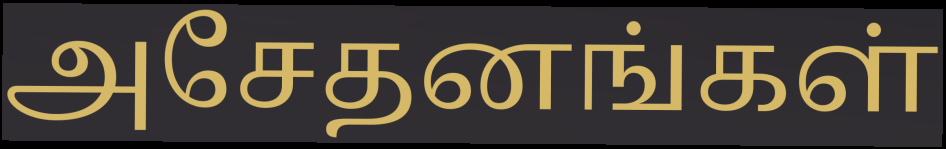
அசேதனங்கள்